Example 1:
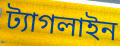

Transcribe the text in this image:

ট্যাগলাইন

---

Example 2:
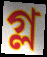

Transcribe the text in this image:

গ্ল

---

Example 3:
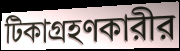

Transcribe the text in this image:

টিকাগ্রহণকারীর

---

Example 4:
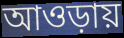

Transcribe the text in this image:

আওড়ায়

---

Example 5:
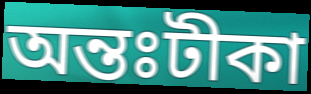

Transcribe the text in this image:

অন্তঃটীকা